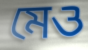
মেও